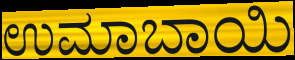
ಉಮಾಬಾಯಿ